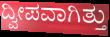
ದ್ವೀಪವಾಗಿತ್ತು